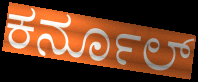
ಕರ್ನೂಲ್